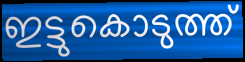
ഇട്ടുകൊടുത്ത്